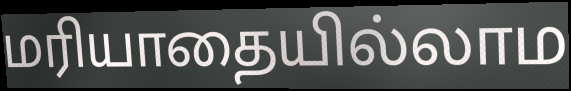
மரியாதையில்லாம